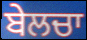
ਬੇਲਚਾ